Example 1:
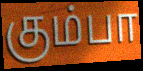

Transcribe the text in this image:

கும்பா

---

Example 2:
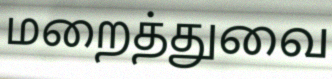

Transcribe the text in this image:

மறைத்துவை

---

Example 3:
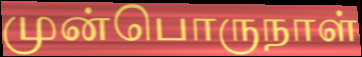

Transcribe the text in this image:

முன்பொருநாள்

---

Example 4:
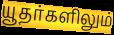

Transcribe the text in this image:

யூதர்களிலும்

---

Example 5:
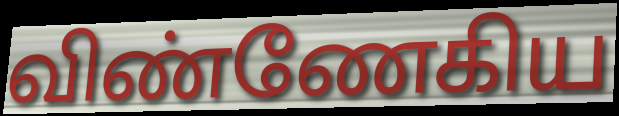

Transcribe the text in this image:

விண்ணேகிய